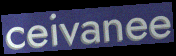
ceivanee